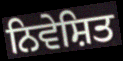
ਨਿਵੇਸ਼ਿਤ